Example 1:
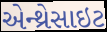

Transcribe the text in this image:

એન્થ્રેસાઇટ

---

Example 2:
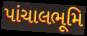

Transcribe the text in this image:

પાંચાલભૂમિ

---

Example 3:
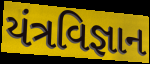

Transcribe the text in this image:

યંત્રવિજ્ઞાન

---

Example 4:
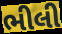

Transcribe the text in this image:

ભીલી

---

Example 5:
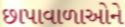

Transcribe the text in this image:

છાપાવાળાઓને